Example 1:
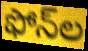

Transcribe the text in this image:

ఫోన్‌ల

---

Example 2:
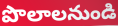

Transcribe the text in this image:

పొలాలనుండి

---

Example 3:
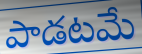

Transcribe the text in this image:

పాడటమే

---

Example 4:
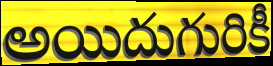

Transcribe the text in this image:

అయిదుగురికీ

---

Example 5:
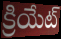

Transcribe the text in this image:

క్రియేట్